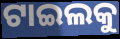
ଟାଇଲକୁ